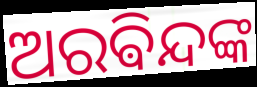
ଅରଵିନ୍ଦଙ୍କ